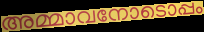
അമ്മാവനോടൊപ്പം